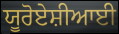
ਯੂਰੋਏਸ਼ੀਆਈ